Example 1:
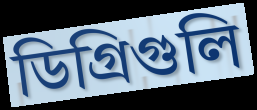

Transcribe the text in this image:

ডিগ্রিগুলি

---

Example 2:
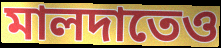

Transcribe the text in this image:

মালদাতেও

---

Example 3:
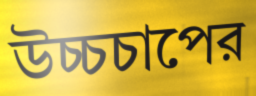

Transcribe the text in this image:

উচ্চচাপের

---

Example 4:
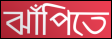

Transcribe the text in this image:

ঝাঁপিতে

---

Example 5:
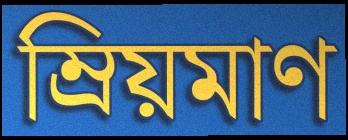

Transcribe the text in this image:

ম্রিয়মাণ